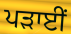
ਪੜਾਈਂ